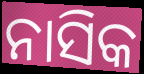
ନାସିକ